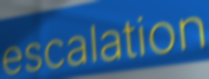
escalation